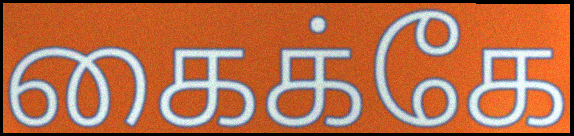
கைக்கே